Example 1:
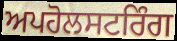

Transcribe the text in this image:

ਅਪਹੋਲਸਟਰਿੰਗ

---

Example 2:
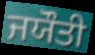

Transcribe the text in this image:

ਜਯੌਤੀ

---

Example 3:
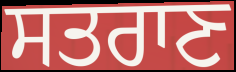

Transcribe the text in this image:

ਸਤਰਾਣ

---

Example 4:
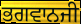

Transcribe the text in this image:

ਭਗਵਾਨਜੀ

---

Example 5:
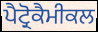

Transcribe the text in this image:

ਪੈਟ੍ਰੋਕੈਮੀਕਲ